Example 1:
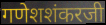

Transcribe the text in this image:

गणेशशंकरजी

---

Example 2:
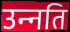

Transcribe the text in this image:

उन्नति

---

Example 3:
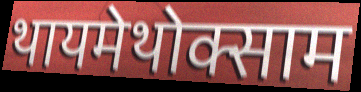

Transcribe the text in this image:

थायमेथोक्साम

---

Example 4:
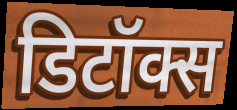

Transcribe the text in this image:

डिटॉक्स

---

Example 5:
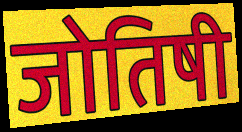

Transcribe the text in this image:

जोतिषी